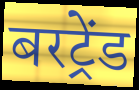
बरट्रेंड